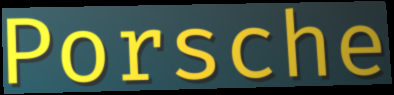
Porsche